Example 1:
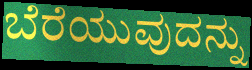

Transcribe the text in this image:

ಬೆರೆಯುವುದನ್ನು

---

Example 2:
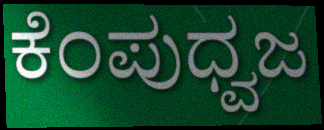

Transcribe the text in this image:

ಕೆಂಪುಧ್ವಜ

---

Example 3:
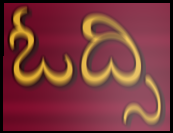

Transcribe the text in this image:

ಓದ್ಸಿ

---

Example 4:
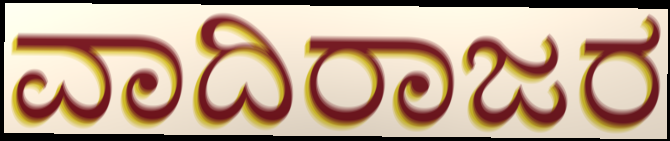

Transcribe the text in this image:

ವಾದಿರಾಜರ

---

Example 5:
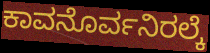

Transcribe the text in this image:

ಕಾವನೊರ್ವನಿರಲ್ಕೆ